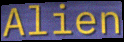
Alien